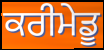
ਕਰੀਮੇਡੂ